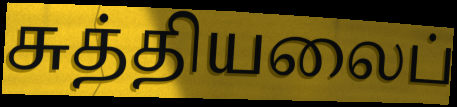
சுத்தியலைப்